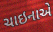
ચાઇનાએ